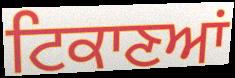
ਟਿਕਾਣਆਂ